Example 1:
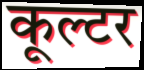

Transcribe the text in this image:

कूल्‍टर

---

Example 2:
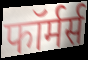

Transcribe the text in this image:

फॉर्मर्स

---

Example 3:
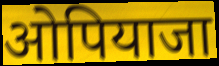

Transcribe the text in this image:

ओपियाजा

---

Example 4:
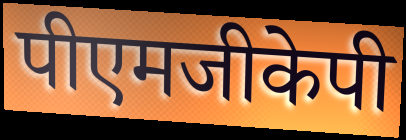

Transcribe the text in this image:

पीएमजीकेपी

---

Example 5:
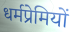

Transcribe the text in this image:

धर्मप्रेमियों